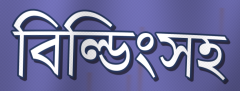
বিল্ডিংসহ